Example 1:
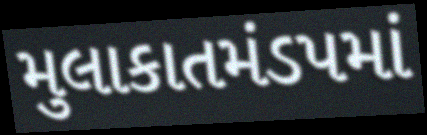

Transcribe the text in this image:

મુલાકાતમંડપમાં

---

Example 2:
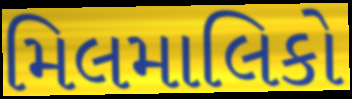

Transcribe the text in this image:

મિલમાલિકો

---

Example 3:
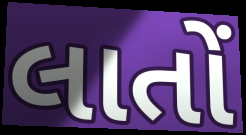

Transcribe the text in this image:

લાતોં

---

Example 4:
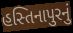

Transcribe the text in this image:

હસ્તિનાપુરનું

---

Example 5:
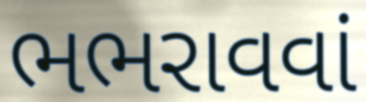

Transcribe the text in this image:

ભભરાવવાં